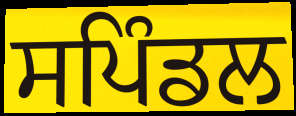
ਸਪਿੰਡਲ